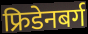
फ्रिडेनबर्ग